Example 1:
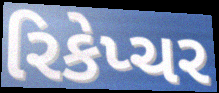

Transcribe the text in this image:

રિકેપ્ચર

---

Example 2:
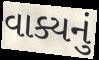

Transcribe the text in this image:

વાક્યનું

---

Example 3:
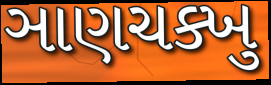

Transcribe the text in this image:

ઞાણચક્ખુ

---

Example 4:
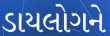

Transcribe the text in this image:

ડાયલોગને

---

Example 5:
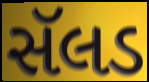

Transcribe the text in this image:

સૅલડ